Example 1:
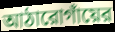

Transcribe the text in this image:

আঠারোগাঁয়ের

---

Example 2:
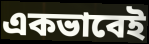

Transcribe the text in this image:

একভাবেই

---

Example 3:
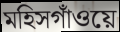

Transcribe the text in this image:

মহিসগাঁওয়ে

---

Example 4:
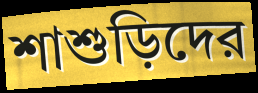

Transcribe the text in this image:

শাশুড়িদের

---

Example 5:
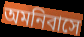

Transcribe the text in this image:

অমনিবাসে